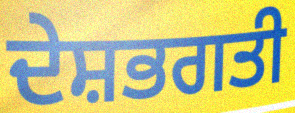
ਦੇਸ਼ਭਗਤੀ